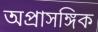
অপ্রাসঙ্গিক